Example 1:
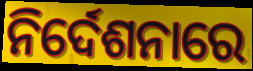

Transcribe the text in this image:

ନିର୍ଦେଶନାରେ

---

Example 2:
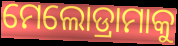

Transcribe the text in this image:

ମେଲୋଡ୍ରାମାକୁ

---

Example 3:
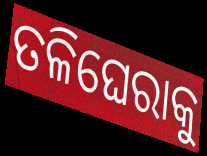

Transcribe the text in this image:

ତଳିଘେରାକୁ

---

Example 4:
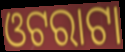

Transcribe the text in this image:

ଓଟରାଟା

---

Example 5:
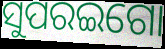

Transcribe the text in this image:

ସୁପରଇଗୋ